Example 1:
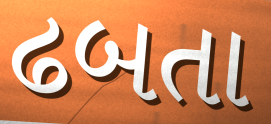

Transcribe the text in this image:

ઢબતા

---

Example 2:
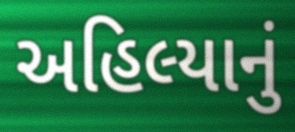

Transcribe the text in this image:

અહિલ્યાનું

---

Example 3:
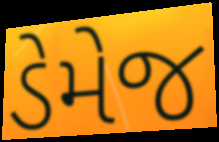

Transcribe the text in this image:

ડેમેજ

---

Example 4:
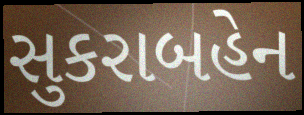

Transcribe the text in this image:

સુકરાબહેન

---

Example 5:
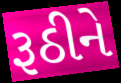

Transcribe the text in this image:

રૂઠીને